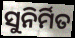
ସୁନିର୍ମିତ